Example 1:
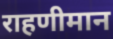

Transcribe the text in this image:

राहणीमान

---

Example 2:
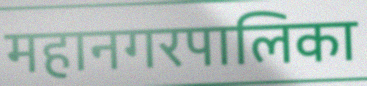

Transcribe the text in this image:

महानगरपालिका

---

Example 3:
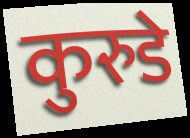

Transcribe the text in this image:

कुरुडे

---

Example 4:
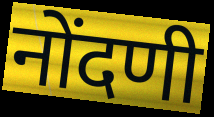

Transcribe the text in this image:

नोंदणी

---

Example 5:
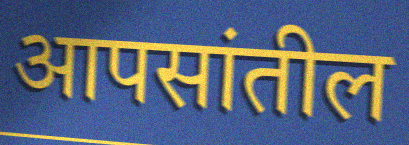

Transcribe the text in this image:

आपसांतील